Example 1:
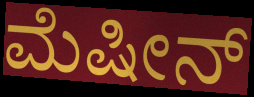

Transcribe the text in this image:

ಮೆಷೀನ್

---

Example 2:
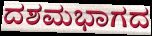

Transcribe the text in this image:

ದಶಮಭಾಗದ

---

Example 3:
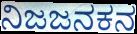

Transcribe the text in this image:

ನಿಜಜನಕನ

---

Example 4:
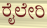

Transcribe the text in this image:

ರೈಲೇರಿ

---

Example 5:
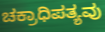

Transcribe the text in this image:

ಚಕ್ರಾಧಿಪತ್ಯವು